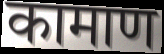
कामाण